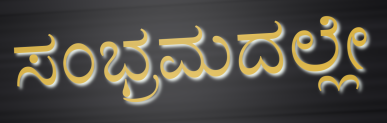
ಸಂಭ್ರಮದಲ್ಲೇ